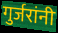
गुर्जरांनी